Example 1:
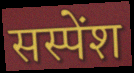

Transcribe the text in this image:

सस्पेंश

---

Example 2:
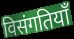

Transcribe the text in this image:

विसंगतियाँ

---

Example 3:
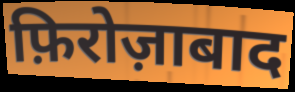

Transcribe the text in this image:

फ़िरोज़ाबाद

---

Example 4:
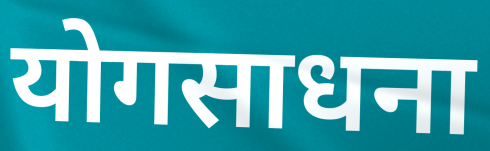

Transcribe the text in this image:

योगसाधना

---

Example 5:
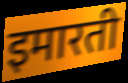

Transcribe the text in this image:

इमारती